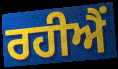
ਰਹੀਐਂ